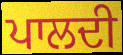
ਪਾਲਦੀ